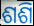
ଶଶି